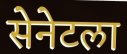
सेनेटला